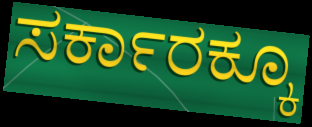
ಸರ್ಕಾರಕ್ಕೂ